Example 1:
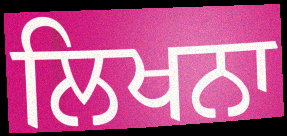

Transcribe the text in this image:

ਲਿਖਨਾ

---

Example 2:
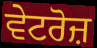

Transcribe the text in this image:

ਵੇਟਰੋਜ਼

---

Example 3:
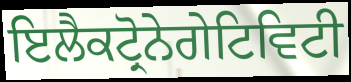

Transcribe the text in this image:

ਇਲੈਕਟ੍ਰੋਨੇਗੇਟਿਵਿਟੀ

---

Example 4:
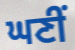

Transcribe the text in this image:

ਘਣੀਂ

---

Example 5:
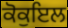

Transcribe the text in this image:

ਕੋਕੁਇਲ